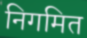
निगमित